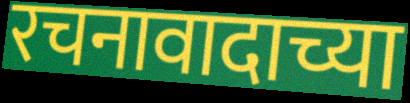
रचनावादाच्या